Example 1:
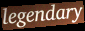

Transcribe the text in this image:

legendary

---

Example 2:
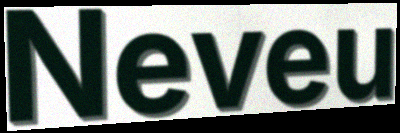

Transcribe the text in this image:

Neveu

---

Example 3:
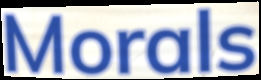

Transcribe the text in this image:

Morals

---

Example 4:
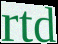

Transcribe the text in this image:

rtd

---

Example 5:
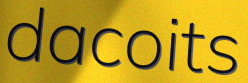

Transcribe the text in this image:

dacoits